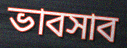
ভাবসাব